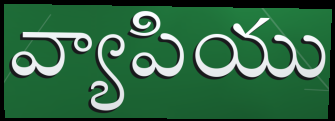
వ్యాపియు